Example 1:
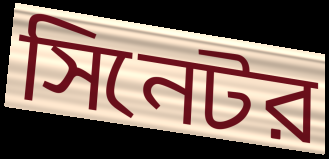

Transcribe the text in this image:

সিনেটর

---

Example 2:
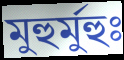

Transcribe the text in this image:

মুহুর্মুহুঃ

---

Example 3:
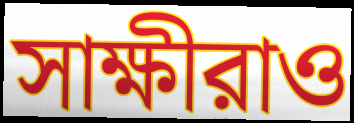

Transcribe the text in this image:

সাক্ষীরাও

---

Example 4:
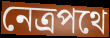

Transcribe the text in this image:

নেত্রপথে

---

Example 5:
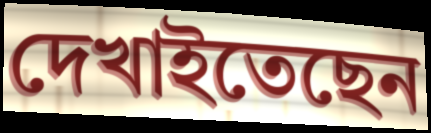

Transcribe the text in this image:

দেখাইতেছেন